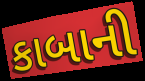
કાબાની